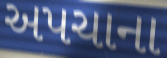
અપચાના